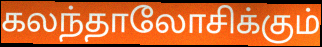
கலந்தாலோசிக்கும்